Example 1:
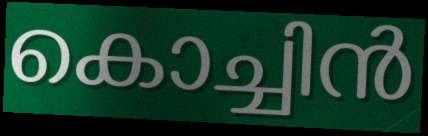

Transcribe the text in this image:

കൊച്ചിൻ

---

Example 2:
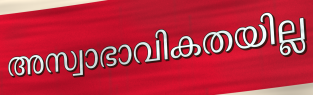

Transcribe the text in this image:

അസ്വാഭാവികതയില്ല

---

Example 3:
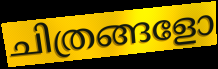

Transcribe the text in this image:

ചിത്രങ്ങളോ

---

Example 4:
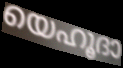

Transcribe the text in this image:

യെഹൂദാ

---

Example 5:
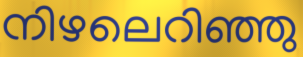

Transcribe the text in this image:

നിഴലെറിഞ്ഞു